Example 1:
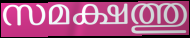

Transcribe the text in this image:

സമക്ഷത്തു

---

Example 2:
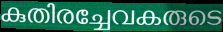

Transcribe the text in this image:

കുതിരച്ചേവകരുടെ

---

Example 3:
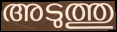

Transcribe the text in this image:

അടുത്തു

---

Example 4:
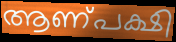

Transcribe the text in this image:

ആണ്പക്ഷി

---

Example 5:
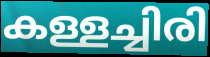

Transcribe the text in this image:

കള്ളച്ചിരി